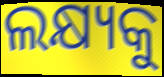
ଲକ୍ଷ୍ୟକୁ